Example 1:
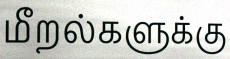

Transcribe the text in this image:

மீறல்களுக்கு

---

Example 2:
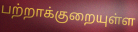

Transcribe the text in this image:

பற்றாக்குறையுள்ள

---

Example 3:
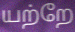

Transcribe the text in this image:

யற்றே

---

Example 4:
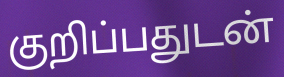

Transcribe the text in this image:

குறிப்பதுடன்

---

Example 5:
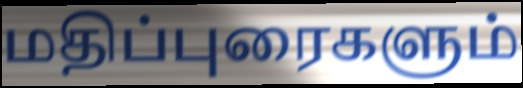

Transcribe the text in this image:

மதிப்புரைகளும்